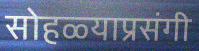
सोहळ्याप्रसंगी